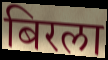
बिरला